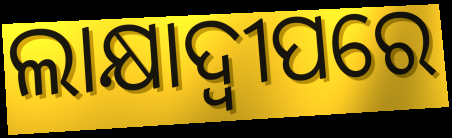
ଲାକ୍ଷାଦ୍ୱୀପରେ